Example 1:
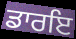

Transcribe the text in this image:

ਡਾਰਇ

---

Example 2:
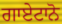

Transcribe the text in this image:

ਗਾਏਟਾਨੋ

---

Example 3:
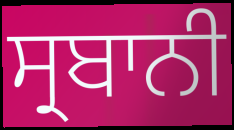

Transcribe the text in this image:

ਸ੍ਰਬਾਨੀ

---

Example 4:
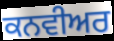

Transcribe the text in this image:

ਕਨਵੀਅਰ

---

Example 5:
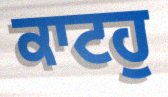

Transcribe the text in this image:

ਕਾਟਹੁ